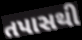
તપાસથી